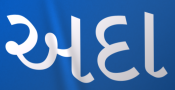
અદા